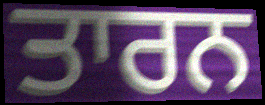
ਤਾਰਨ